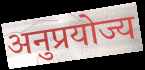
अनुप्रयोज्य